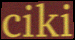
ciki